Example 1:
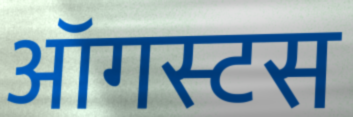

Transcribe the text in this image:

ऑगस्टस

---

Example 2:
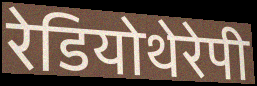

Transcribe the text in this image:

रेडियोथेरेपी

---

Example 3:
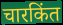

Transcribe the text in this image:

चारकिंत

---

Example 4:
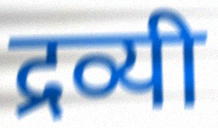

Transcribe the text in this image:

द्रव्यी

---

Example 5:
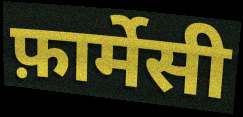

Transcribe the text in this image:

फ़ार्मेसी